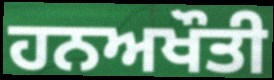
ਹਨਅਖੌਤੀ